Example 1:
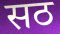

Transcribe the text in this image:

सठ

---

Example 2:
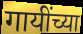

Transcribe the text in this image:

गायींच्या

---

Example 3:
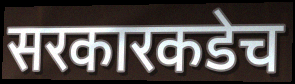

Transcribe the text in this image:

सरकारकडेच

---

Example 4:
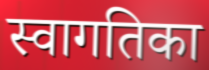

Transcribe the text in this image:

स्वागतिका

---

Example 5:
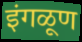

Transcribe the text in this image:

इंगळूण